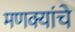
मणक्यांचे